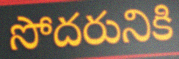
సోదరునికి